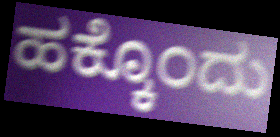
ಹಕ್ಕೊಂದು